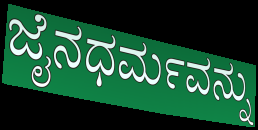
ಜೈನಧರ್ಮವನ್ನು